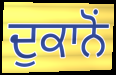
ਦੁਕਾਨੋਂ